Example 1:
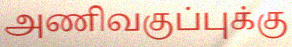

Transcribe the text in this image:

அணிவகுப்புக்கு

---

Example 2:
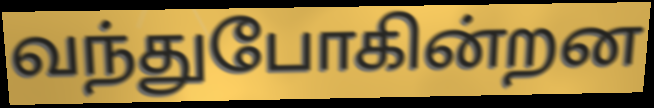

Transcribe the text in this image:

வந்துபோகின்றன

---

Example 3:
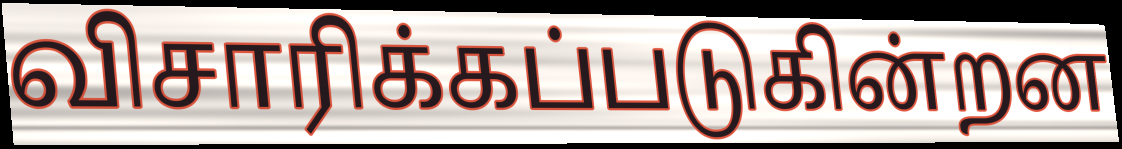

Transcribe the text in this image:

விசாரிக்கப்படுகின்றன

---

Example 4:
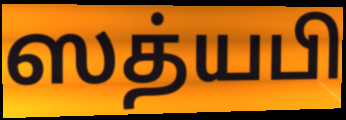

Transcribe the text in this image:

ஸத்யபி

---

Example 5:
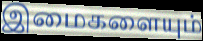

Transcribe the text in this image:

இமைகளையும்